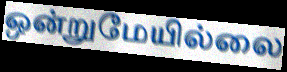
ஒன்றுமேயில்லை